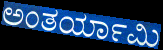
ಅಂತರ್ಯಾಮಿ